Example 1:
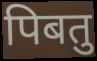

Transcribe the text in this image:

पिबतु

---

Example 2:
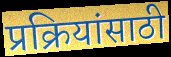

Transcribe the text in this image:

प्रक्रियांसाठी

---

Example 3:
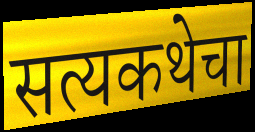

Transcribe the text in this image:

सत्यकथेचा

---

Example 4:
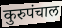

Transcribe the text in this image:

कुरुपंचाल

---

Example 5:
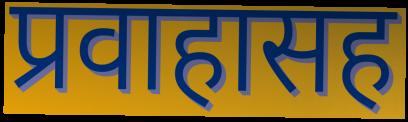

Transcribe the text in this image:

प्रवाहासह